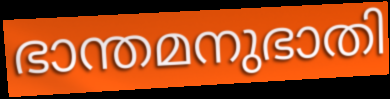
ഭാന്തമനുഭാതി